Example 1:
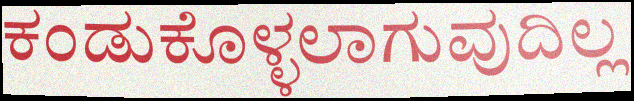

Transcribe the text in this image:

ಕಂಡುಕೊಳ್ಳಲಾಗುವುದಿಲ್ಲ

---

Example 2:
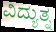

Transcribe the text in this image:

ವಿದ್ಯುತ್ನ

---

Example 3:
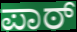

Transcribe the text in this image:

ಪಾಠ್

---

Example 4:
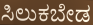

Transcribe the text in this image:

ಸಿಲುಕಬೇಡ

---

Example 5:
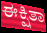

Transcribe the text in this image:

ಈಕ್ಷಿತಾ